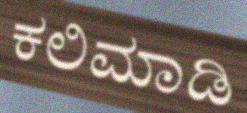
ಕಲಿಮಾಡಿ